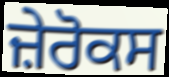
ਜ਼ੇਰੋਕਸ